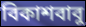
বিকাশবাবু